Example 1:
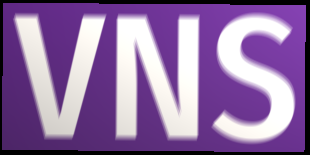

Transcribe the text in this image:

VNS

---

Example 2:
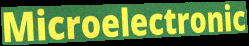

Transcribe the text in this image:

Microelectronic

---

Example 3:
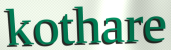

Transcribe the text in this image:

kothare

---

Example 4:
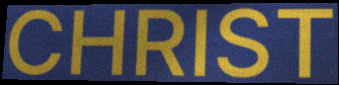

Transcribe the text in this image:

CHRIST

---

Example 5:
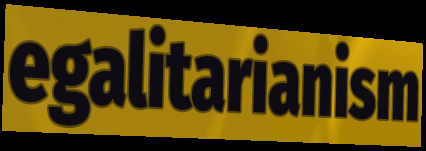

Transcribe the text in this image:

egalitarianism